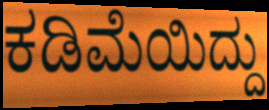
ಕಡಿಮೆಯಿದ್ದು